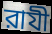
রাযী